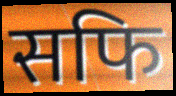
सफि